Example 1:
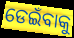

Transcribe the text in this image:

ଡେଇଁବାକୁ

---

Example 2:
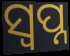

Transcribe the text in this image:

ସ୍ବପ୍ନ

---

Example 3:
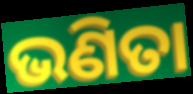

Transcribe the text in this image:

ଭଣିତା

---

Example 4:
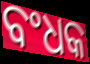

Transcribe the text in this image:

ବଂଧକ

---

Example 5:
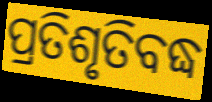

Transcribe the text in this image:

ପ୍ରତିଶୃତିବଦ୍ଧ